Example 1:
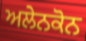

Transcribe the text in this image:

ਅਲੇਨਕੋਨ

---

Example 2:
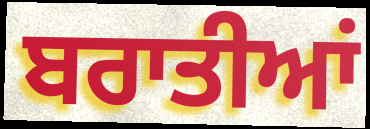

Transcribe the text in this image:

ਬਰਾਤੀਆਂ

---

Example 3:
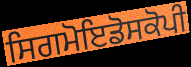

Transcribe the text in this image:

ਸਿਗਮੋਇਡੋਸਕੋਪੀ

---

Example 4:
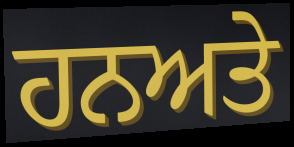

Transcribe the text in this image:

ਹਨਅਤੇ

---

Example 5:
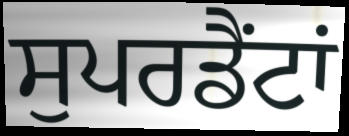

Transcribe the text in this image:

ਸੁਪਰਡੈਂਟਾਂ